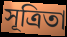
সূত্রিতা